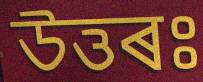
উত্তৰঃ